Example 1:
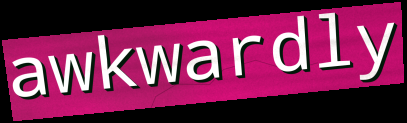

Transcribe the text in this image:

awkwardly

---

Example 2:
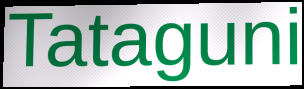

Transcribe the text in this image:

Tataguni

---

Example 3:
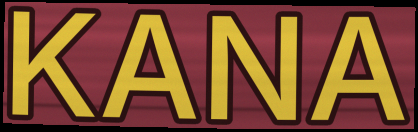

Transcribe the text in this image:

KANA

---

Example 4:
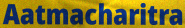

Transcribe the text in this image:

Aatmacharitra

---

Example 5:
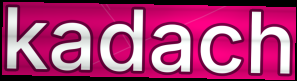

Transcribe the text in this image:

kadach